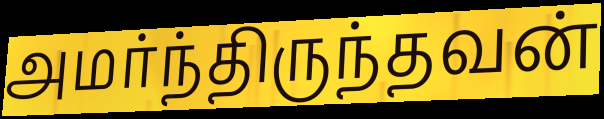
அமர்ந்திருந்தவன்